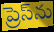
ప్రెస్‌ను